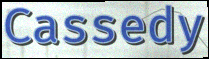
Cassedy